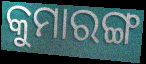
କୁମାରଙ୍ଗ